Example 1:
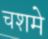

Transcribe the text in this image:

चशमे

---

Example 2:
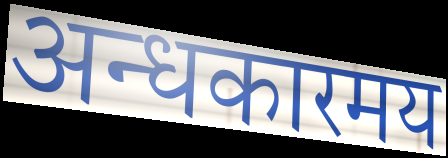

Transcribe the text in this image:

अन्धकारमय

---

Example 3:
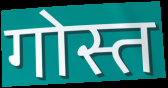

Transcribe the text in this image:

गोस्त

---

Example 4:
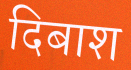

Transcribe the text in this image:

दिबाश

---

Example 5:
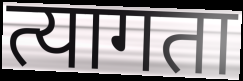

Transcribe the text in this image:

त्यागता